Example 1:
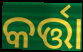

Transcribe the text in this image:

କର୍ତ୍ତା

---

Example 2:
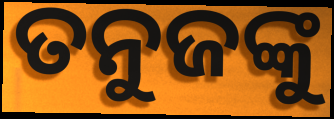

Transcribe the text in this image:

ତନୁଜଙ୍କୁ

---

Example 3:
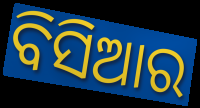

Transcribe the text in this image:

ବିସିଆର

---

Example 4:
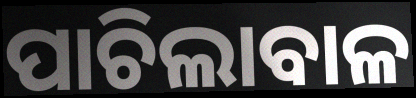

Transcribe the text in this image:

ପାଚିଲାବାଳ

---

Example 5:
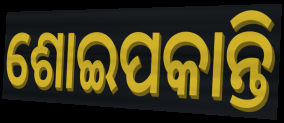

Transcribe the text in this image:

ଶୋଇପକାନ୍ତି